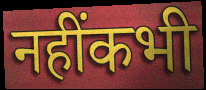
नहींकभी